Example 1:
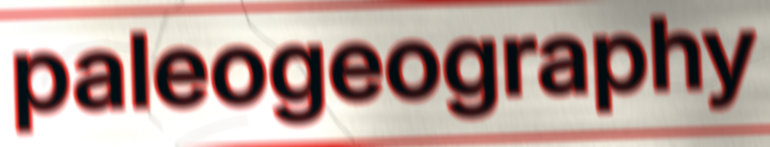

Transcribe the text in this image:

paleogeography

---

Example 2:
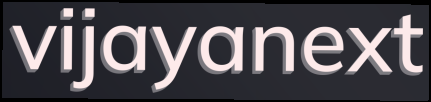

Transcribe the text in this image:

vijayanext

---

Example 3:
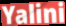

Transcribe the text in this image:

Yalini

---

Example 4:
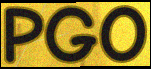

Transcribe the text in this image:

PGO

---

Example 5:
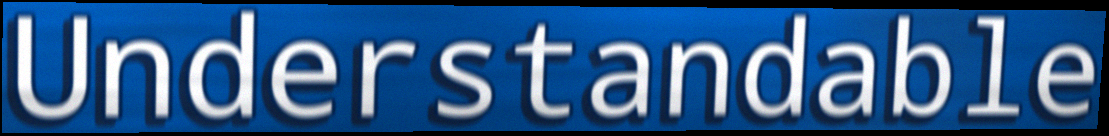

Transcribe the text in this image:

Understandable